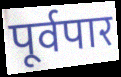
पूर्वपार